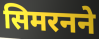
सिमरनने